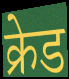
क्रेड